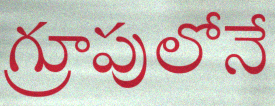
గ్రూపులోనే